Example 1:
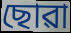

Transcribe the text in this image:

ছোৱা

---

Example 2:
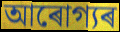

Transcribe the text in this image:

আৰোগ্যৰ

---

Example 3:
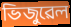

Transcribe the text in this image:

ভিজুৱেল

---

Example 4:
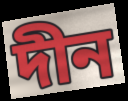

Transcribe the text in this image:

দীন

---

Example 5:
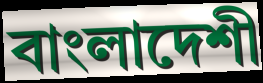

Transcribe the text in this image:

বাংলাদেশী